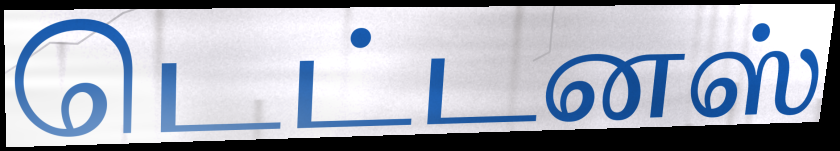
டெட்டனஸ்